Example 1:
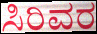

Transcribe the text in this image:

ಸಿರಿವರ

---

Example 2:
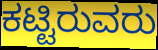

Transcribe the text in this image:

ಕಟ್ಟಿರುವರು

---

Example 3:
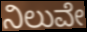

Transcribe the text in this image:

ನಿಲುವೇ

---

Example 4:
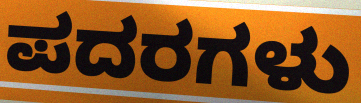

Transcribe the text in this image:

ಪದರಗಳು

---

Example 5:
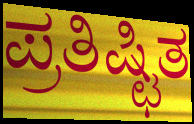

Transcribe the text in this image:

ಪ್ರತಿಷ್ಟಿತ